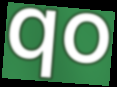
qo